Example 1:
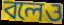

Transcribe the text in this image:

বলেও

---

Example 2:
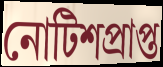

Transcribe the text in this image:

নোটিশপ্রাপ্ত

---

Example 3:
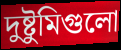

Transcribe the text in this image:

দুষ্টুমিগুলো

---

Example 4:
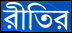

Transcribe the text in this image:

রীতির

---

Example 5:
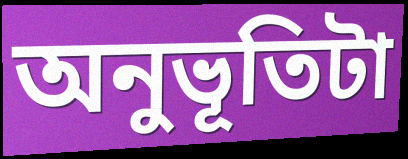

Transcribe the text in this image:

অনুভূতিটা